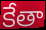
కేతా